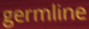
germline